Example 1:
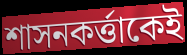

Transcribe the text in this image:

শাসনকর্ত্তাকেই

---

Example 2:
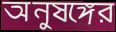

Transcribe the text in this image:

অনুষঙ্গের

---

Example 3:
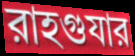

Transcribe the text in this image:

রাহগুযার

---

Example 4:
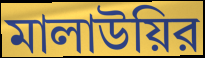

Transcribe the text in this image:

মালাউয়ির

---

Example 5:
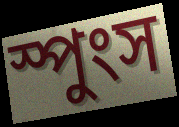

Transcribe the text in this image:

স্পুংস